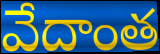
వేదాంత